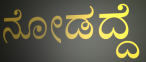
ನೋಡದ್ದೆ